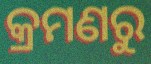
କ୍ରମଣରୁ